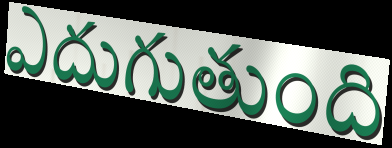
ఎదుగుతుంది